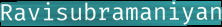
Ravisubramaniyan